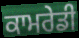
ਕਾਮਰੇਡੀ